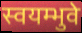
स्वयम्भुवे